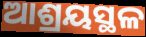
ଆଶ୍ରୟସ୍ଥଳ